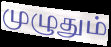
முழுதும்